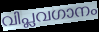
വിപ്ലവഗാനം